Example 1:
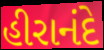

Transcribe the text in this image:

હીરાનંદે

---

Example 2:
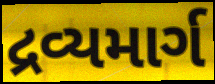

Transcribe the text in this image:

દ્રવ્યમાર્ગ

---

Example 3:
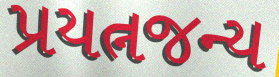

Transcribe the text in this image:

પ્રયત્નજન્ય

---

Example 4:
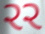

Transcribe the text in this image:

રર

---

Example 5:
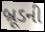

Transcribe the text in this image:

બ્રૂડની